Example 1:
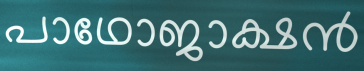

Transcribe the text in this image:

പാഥോജാക്ഷൻ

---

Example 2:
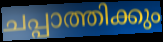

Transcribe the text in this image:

ചപ്പാത്തിക്കും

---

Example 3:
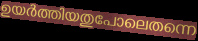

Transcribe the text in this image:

ഉയർത്തിയതുപോലെതന്നെ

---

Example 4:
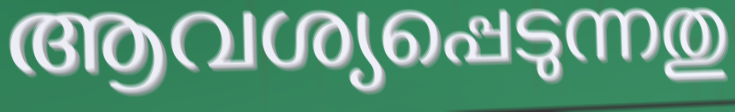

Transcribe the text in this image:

ആവശ്യപ്പെടുന്നതു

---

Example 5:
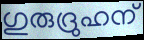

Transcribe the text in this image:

ഗുരുദ്രുഹന്